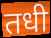
तधी